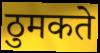
ठुमकते